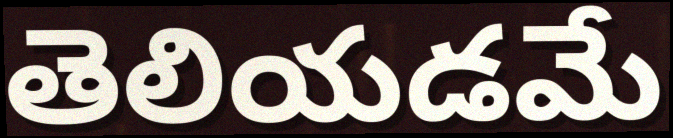
తెలియడమే